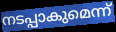
നടപ്പാകുമെന്ന്